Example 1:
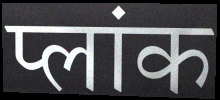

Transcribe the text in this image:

प्लांक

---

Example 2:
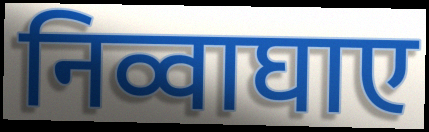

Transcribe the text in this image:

निव्वाघाए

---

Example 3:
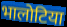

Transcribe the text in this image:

भालोटिया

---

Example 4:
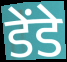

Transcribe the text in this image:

डेंडे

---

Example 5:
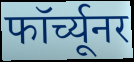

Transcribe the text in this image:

फॉर्च्यूनर